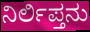
ನಿರ್ಲಿಪ್ತನು